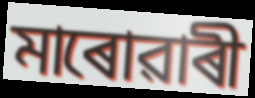
মাৰোৱাৰী